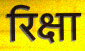
रिक्षा